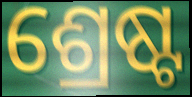
ଶ୍ରେଷ୍ଟ